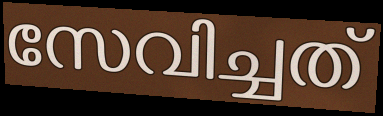
സേവിച്ചത്